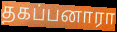
தகப்பனாரா